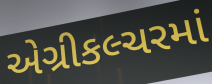
એગ્રીકલ્ચરમાં